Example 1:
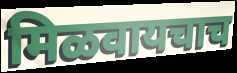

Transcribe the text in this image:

मिळवायचाच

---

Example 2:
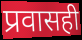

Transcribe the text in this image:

प्रवासही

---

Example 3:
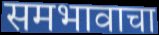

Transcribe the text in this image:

समभावाचा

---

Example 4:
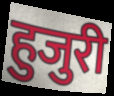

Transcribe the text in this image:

हुजुरी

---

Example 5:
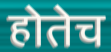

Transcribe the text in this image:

होतेच